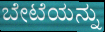
ಬೇಟೆಯನ್ನು